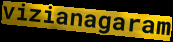
vizianagaram